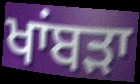
ਖਾਂਬੜਾ